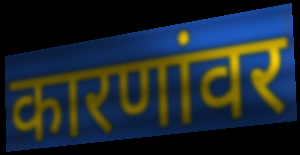
कारणांवर